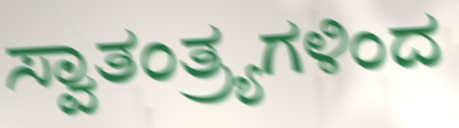
ಸ್ವಾತಂತ್ರ್ಯಗಳಿಂದ